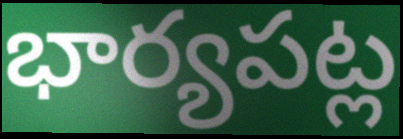
భార్యపట్ల